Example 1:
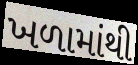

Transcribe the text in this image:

ખળામાંથી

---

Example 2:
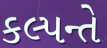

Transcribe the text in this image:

કલ્પન્તે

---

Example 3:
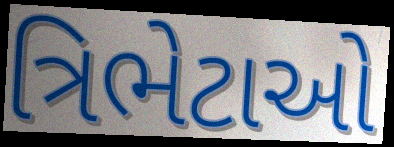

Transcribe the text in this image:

ત્રિભેટાઓ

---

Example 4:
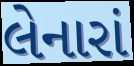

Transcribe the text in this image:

લેનારાં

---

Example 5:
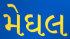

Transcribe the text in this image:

મેઘલ